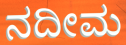
ನದೀಮ